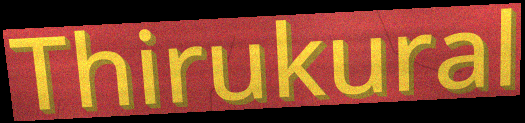
Thirukural